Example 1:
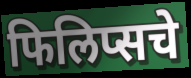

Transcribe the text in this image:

फिलिप्सचे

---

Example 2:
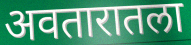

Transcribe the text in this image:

अवतारातला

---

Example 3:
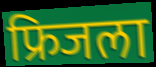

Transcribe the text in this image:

फ्रिजला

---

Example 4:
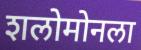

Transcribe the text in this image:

शलोमोनला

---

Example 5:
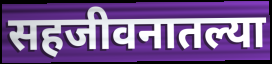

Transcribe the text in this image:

सहजीवनातल्या